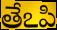
తేఽపి